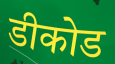
डीकोड